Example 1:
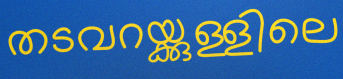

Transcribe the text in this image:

തടവറയ്ക്കുള്ളിലെ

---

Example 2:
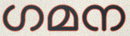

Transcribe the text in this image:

ഗമന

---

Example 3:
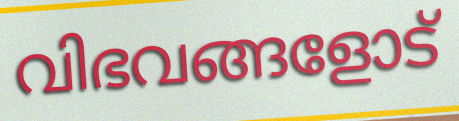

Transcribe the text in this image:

വിഭവങ്ങളോട്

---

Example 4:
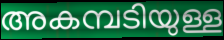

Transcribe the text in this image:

അകമ്പടിയുള്ള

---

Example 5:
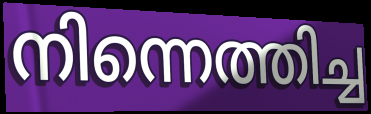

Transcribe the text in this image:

നിന്നെത്തിച്ച